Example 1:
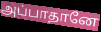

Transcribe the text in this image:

அப்பாதானே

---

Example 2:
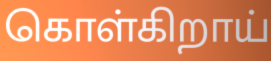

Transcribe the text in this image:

கொள்கிறாய்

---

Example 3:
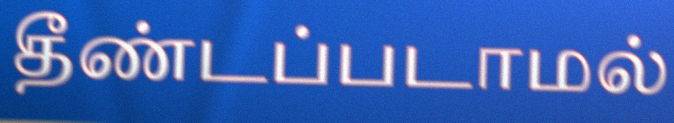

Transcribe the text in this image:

தீண்டப்படாமல்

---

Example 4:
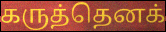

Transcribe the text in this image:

கருத்தெனக்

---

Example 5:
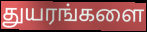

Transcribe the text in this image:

துயரங்களை